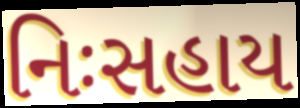
નિઃસહાય